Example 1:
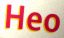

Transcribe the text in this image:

Heo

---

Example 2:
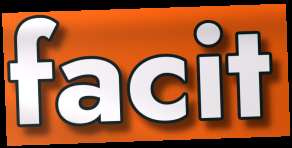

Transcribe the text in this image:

facit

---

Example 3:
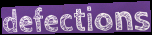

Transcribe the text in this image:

defections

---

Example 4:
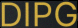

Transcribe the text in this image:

DIPG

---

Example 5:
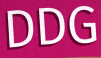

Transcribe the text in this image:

DDG